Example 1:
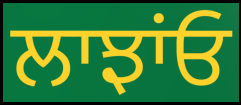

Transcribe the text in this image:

ਲਾਝਾਂਓ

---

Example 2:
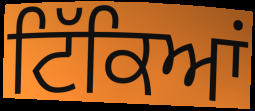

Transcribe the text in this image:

ਟਿੱਕਿਆਂ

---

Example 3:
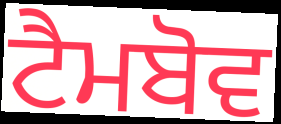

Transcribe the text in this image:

ਟੈਮਬੋਵ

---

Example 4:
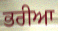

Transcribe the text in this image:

ਭਰੀਆ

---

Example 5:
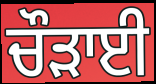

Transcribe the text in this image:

ਚੌੜਾਈ